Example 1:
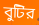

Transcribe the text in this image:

বুটির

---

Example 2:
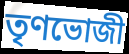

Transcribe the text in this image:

তৃণভোজী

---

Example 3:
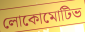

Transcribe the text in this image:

লোকোমোটিভ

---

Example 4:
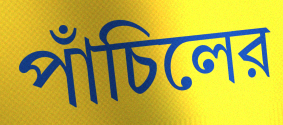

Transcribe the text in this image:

পাঁচিলের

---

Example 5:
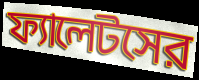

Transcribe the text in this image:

ফ্যালেটসের